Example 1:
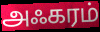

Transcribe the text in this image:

அஃகரம்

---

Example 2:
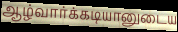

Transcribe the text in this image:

ஆழ்வார்க்கடியானுடைய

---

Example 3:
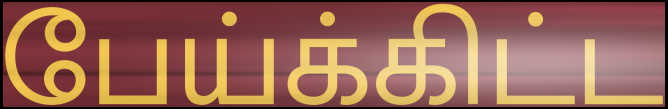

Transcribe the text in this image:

பேய்க்கிட்ட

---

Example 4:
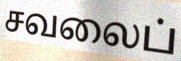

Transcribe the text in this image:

சவலைப்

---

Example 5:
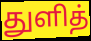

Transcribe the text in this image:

துளித்